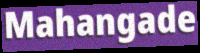
Mahangade